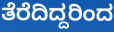
ತೆರೆದಿದ್ದರಿಂದ